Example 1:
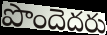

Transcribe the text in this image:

పొందెదరు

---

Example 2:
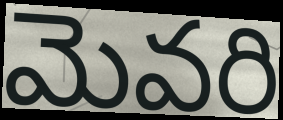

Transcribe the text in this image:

మెవరి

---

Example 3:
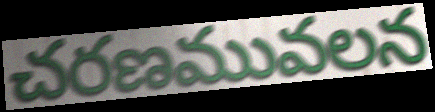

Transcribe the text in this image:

చరణమువలన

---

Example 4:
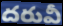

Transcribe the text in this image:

దరువీ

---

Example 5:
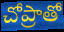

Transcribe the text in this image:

చోప్రాతో